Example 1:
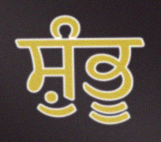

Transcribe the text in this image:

ਸ਼ੁੰਭੂ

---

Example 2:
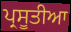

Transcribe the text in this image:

ਪ੍ਰਸੂਤੀਆ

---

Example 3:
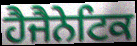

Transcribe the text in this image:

ਹੈਜੈਨੇਟਿਕ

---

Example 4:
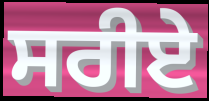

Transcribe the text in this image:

ਸਰੀਏ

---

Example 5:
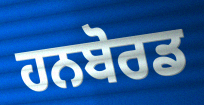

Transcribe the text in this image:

ਹਨਬੋਰਡ